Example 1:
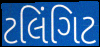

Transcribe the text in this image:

ટલિંગિટ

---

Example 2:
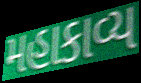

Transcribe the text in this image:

મહાકાવ્ય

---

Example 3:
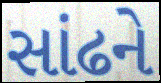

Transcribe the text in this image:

સાંઢને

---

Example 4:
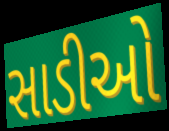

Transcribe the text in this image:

સાડીઓ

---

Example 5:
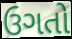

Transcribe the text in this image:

ઉગતો